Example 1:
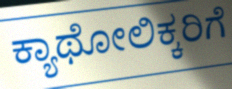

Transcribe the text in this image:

ಕ್ಯಾಥೋಲಿಕ್ಕರಿಗೆ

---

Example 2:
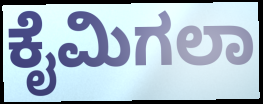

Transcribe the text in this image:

ಕೈಮಿಗಲಾ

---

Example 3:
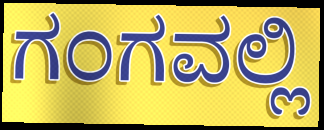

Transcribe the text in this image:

ಗಂಗವಲ್ಲಿ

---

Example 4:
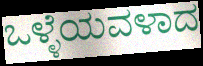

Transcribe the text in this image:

ಒಳ್ಳೆಯವಳಾದ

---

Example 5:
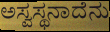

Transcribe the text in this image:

ಅಸ್ವಸ್ಥನಾದೆನು